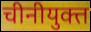
चीनीयुक्त